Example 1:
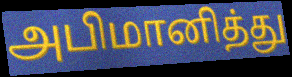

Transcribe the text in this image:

அபிமானித்து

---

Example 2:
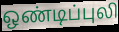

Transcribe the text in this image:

ஒண்டிப்புலி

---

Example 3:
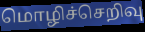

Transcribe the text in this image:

மொழிச்செறிவு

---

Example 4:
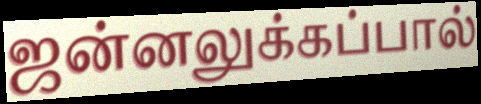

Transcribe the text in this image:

ஜன்னலுக்கப்பால்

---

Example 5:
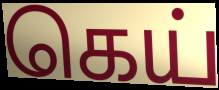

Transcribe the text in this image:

கெய்